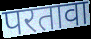
परतावा